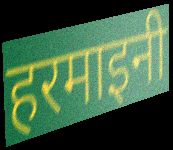
हरमाइनी